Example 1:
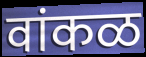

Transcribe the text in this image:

वांकळ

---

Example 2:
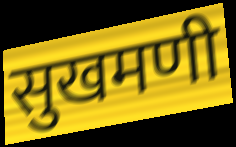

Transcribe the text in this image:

सुखमणी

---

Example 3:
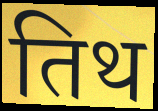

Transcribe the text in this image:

तिथ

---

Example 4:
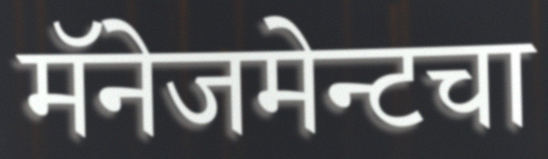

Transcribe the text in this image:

मॅनेजमेन्टचा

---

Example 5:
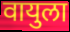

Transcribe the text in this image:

वायुला